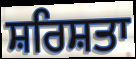
ਸ਼ਰਿਸ਼ਤਾ